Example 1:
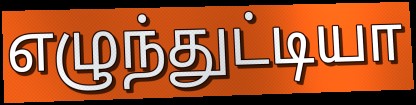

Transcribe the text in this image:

எழுந்துட்டியா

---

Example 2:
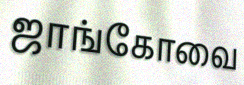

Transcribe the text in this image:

ஜாங்கோவை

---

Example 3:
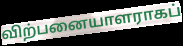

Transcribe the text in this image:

விற்பனையாளராகப்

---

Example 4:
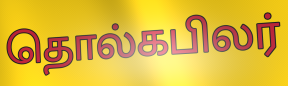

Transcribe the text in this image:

தொல்கபிலர்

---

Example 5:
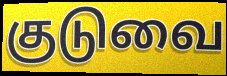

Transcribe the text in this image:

குடுவை